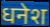
धनेश